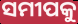
ସମୀପକୁ